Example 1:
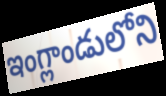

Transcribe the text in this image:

ఇంగ్లాండులోని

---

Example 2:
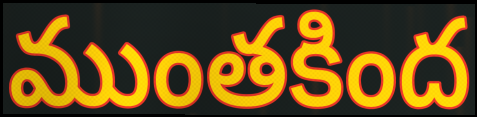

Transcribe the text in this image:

ముంతకింద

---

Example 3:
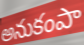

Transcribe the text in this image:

అనుకంపా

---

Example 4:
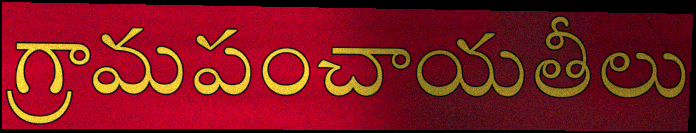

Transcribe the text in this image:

గ్రామపంచాయతీలు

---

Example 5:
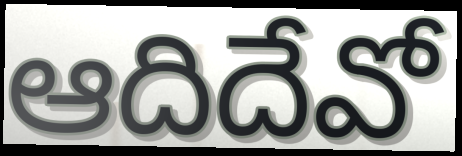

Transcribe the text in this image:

ఆదిదేవో